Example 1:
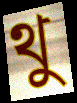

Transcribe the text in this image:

থু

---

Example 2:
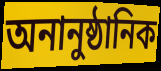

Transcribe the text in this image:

অনানুষ্ঠানিক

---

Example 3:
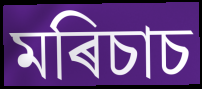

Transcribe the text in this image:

মৰিচাচ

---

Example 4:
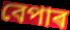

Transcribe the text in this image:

বেপাৰ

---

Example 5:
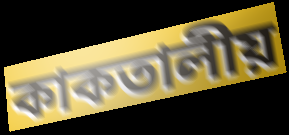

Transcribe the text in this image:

কাকতালীয়